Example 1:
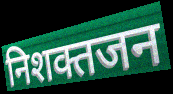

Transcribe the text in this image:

निशक्तजन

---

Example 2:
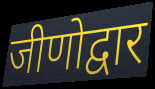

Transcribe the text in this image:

जीणोद्वार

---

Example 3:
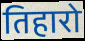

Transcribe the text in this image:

तिहारो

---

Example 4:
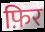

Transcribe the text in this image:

फ़िर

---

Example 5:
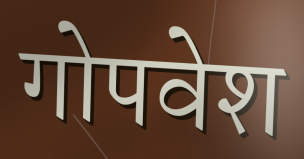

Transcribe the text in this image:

गोपवेश